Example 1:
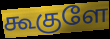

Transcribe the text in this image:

கூகுளே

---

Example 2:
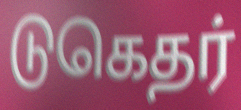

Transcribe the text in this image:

டுகெதர்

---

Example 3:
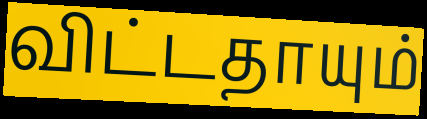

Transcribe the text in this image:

விட்டதாயும்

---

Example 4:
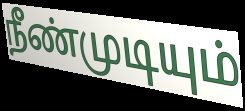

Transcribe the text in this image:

நீண்முடியும்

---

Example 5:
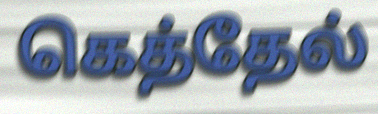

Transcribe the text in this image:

கெத்தேல்